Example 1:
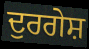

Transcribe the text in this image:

ਦੁਰਗੇਸ਼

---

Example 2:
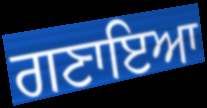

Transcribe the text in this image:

ਗਣਾਇਆ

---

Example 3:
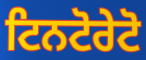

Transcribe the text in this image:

ਟਿਨਟੋਰੇਟੋ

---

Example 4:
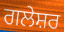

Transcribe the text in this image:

ਗਲੇਸ਼ਰ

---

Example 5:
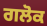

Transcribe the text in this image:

ਗਲੋਕ